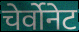
चेर्वोनेट